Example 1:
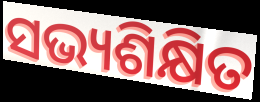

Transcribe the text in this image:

ସଭ୍ୟଶିକ୍ଷିତ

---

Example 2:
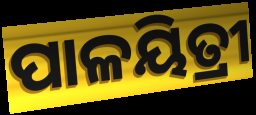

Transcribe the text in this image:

ପାଳୟିତ୍ରୀ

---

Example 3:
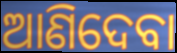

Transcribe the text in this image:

ଆଣିଦେବା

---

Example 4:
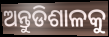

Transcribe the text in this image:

ଅନ୍ତୁଡିଶାଳକୁ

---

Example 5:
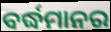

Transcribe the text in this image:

ବର୍ଦ୍ଧମାନର